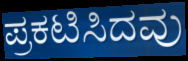
ಪ್ರಕಟಿಸಿದವು